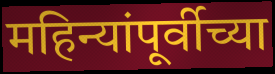
महिन्यांपूर्वीच्या